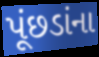
પૂંછડાંના